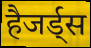
हैजर्ड्स